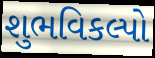
શુભવિકલ્પો